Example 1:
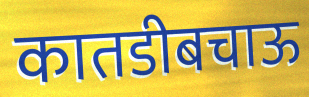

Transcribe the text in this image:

कातडीबचाऊ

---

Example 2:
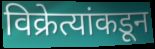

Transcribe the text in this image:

विक्रेत्यांकडून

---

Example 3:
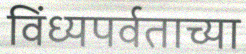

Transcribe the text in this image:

विंध्यपर्वताच्या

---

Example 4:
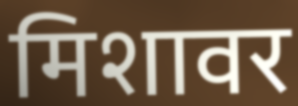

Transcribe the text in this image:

मिशावर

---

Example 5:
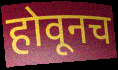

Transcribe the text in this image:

होवूनच